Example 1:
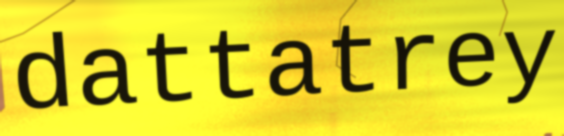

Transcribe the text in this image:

dattatrey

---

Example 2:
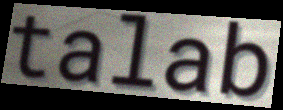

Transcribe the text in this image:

talab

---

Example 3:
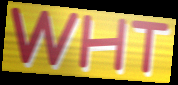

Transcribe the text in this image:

WHT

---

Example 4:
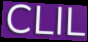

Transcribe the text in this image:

CLIL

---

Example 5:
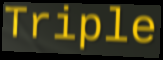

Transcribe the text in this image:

Triple